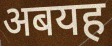
अबयह